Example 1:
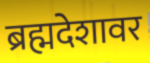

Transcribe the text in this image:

ब्रह्मदेशावर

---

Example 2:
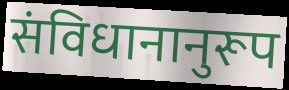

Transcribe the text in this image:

संविधानानुरूप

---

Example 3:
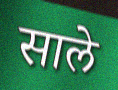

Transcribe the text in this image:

साले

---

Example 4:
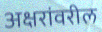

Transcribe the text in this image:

अक्षरांवरील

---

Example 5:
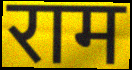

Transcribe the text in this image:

राम